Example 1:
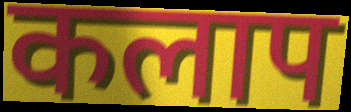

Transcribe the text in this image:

कलाप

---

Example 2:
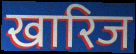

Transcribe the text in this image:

खारिज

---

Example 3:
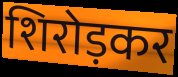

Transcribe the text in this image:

शिरोड़कर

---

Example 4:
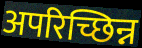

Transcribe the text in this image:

अपरिच्छिन्न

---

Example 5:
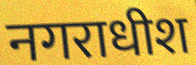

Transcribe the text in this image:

नगराधीश